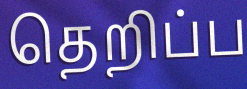
தெறிப்ப